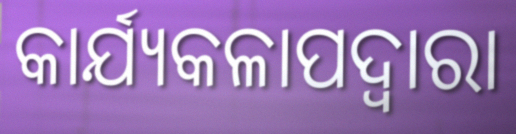
କାର୍ଯ୍ୟକଳାପଦ୍ବାରା